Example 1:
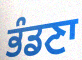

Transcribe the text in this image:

ਭੰਡਣਾ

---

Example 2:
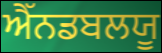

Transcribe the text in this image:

ਐੱਨਡਬਲਯੂ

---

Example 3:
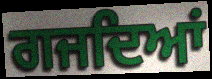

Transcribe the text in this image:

ਗਜਦਿਆਂ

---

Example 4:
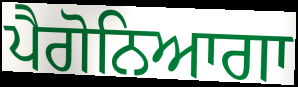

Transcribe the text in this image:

ਪੈਗੋਨਿਆਗਾ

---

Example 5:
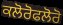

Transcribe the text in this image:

ਕਲੋਰੋਫਲੋਰੋ